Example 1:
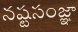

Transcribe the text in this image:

నష్టసంజ్ఞా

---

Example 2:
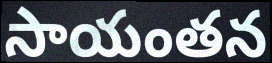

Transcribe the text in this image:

సాయంతన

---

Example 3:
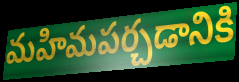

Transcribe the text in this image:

మహిమపర్చడానికి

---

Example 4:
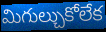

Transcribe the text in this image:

మిగుల్చుకోలేక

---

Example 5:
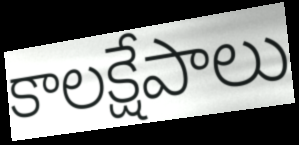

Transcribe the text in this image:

కాలక్షేపాలు